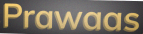
Prawaas